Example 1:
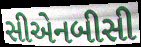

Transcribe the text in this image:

સીએનબીસી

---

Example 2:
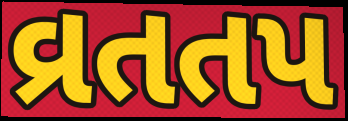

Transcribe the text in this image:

વ્રતતપ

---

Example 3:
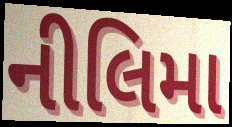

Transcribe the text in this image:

નીલિમા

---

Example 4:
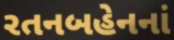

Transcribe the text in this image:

રતનબહેનનાં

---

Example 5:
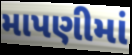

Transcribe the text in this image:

માપણીમાં